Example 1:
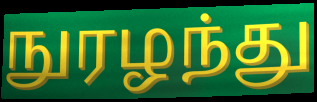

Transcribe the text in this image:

நுரழந்து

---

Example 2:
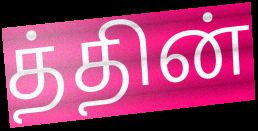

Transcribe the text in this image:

த்தின்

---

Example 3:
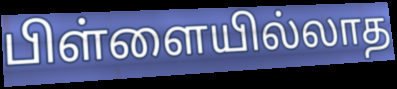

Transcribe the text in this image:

பிள்ளையில்லாத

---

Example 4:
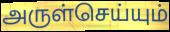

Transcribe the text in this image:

அருள்செய்யும்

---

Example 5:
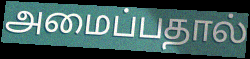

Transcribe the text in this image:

அமைப்பதால்